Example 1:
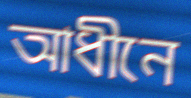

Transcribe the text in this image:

আধীনে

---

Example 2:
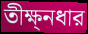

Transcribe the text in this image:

তীক্ষ্নধার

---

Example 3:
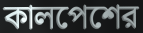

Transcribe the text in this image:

কালপেশের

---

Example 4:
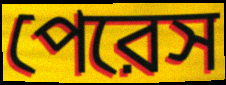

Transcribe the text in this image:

পেরেস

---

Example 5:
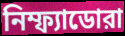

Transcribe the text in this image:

নিম্ফ্যাডোরা